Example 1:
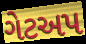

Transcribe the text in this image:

ગેટઅપ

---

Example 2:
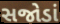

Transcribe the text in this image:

સજોડાં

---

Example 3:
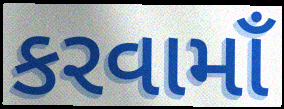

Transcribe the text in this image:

કરવામાઁ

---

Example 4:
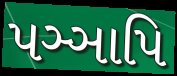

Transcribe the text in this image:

પઞ્ઞાપિ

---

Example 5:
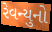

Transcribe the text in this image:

રેવન્યુનો